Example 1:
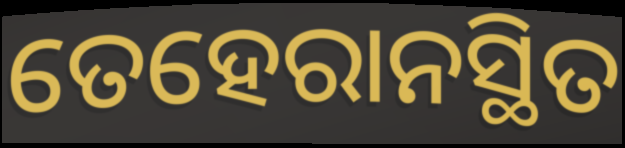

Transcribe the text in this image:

ତେହେରାନସ୍ଥିତ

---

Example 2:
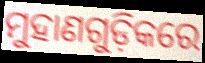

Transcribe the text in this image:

ମୁହାଣଗୁଡ଼ିକରେ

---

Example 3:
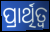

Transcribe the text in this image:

ପ୍ରାର୍ଥିତ୍ୱ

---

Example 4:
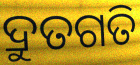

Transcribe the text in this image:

ଦ୍ରୁତଗତି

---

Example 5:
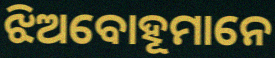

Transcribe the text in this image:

ଝିଅବୋହୂମାନେ